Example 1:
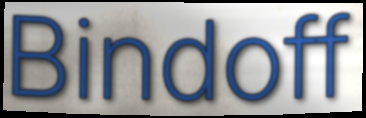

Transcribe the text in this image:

Bindoff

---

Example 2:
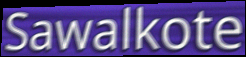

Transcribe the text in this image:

Sawalkote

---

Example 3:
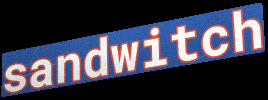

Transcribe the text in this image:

sandwitch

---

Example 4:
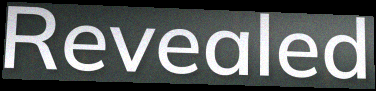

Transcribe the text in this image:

Revealed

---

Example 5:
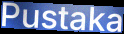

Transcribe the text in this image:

Pustaka